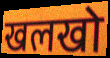
खलखो